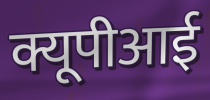
क्यूपीआई